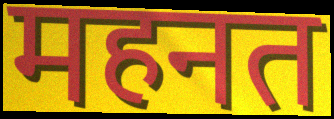
महनत